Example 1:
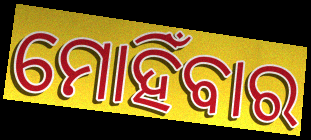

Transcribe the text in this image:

ମୋହିଁବାର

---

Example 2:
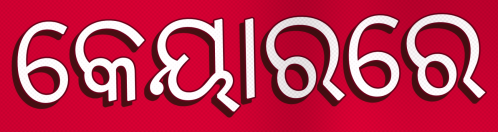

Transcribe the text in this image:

କେୟାରରେ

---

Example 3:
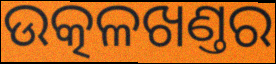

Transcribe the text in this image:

ଉତ୍କଳଖଣ୍ତର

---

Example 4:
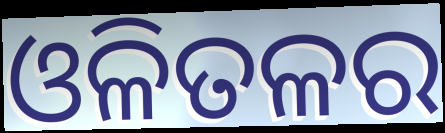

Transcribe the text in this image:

ଓଳିତଳର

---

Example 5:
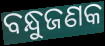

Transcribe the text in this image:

ବନ୍ଧୁଜଣକ